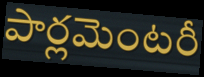
పార్లమెంటరీ